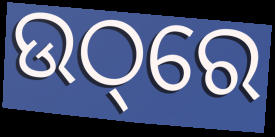
ଉଠ୍‌ରେ